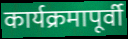
कार्यक्रमापूर्वी